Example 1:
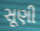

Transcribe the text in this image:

સૂણી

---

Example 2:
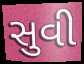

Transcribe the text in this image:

સુવી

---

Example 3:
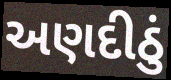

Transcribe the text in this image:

અણદીઠું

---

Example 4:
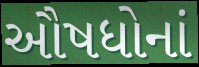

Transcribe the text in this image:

ઔષધોનાં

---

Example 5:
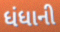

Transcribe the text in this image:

ધંધાની